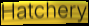
Hatchery